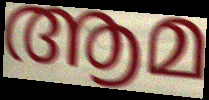
ആമ